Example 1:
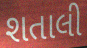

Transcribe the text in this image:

શતાલી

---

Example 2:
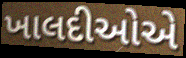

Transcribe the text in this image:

ખાલદીઓએ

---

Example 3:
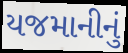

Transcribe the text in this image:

યજમાનીનું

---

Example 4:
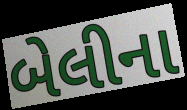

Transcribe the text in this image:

બેલીના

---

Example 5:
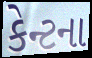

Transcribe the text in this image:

કેન્ટના